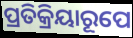
ପ୍ରତିକ୍ରିୟାରୂପେ